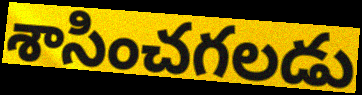
శాసించగలడు